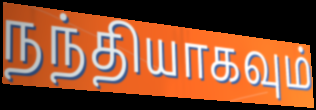
நந்தியாகவும்